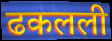
ढकलली